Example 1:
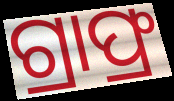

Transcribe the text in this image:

ଗ୍ରାଫ୍ର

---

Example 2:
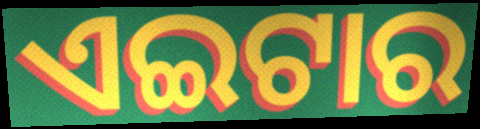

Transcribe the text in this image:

ଏଇଟାର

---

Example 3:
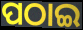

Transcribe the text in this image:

ପଠାଇ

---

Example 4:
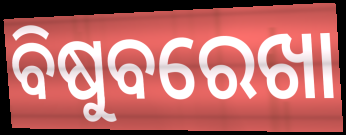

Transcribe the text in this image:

ବିଷୁବରେଖା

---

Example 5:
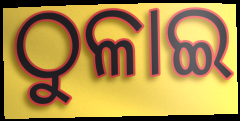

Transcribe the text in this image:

ଠୁଳାଇ